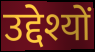
उद्देश्यों